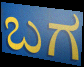
ಬಗ